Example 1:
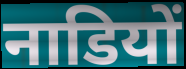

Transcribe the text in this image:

नाडियों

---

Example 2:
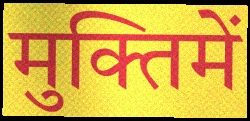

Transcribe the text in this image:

मुक्तिमें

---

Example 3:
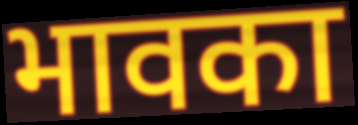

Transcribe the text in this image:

भावका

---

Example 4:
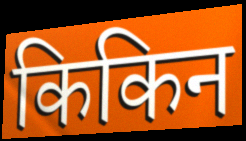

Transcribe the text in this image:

किकिन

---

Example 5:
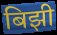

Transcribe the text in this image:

बिझी